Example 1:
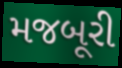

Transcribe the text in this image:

મજબૂરી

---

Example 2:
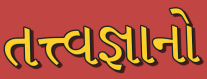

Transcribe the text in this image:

તત્ત્વજ્ઞાનો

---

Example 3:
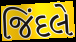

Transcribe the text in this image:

જિંદલે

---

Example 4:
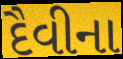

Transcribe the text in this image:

દૈવીના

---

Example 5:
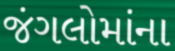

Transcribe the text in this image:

જંગલોમાંના